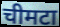
चीमटा